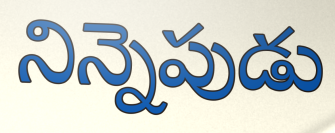
నిన్నెపుడు